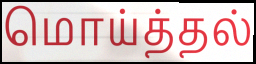
மொய்த்தல்